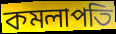
কমলাপতি